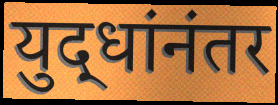
युद्धांनंतर